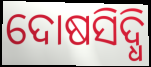
ଦୋଷସିଦ୍ଧି